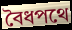
বৈধপথে